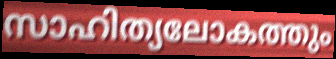
സാഹിത്യലോകത്തും